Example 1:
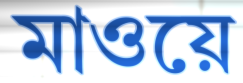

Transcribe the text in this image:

মাওয়ে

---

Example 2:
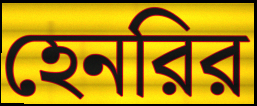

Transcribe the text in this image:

হেনরির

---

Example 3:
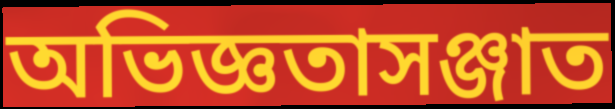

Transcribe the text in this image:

অভিজ্ঞতাসঞ্জাত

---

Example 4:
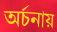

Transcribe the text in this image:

অর্চনায়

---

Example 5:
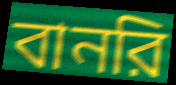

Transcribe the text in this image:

বানরি